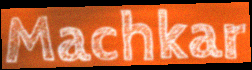
Machkar